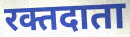
रक्तदाता